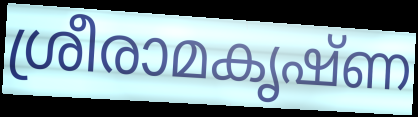
ശ്രീരാമകൃഷ്ണ